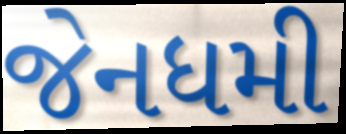
જેનધમી